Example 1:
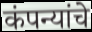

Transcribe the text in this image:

कंपन्यांचे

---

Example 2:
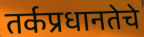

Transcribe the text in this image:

तर्कप्रधानतेचे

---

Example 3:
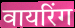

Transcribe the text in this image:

वायरिंग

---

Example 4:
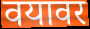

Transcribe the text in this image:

वयावर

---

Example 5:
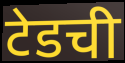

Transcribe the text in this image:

टेडची